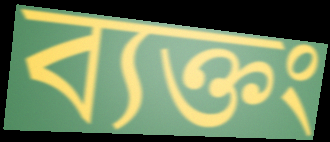
ব্যক্তং